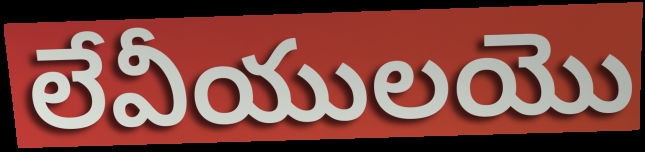
లేవీయులయొ